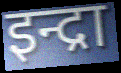
इन्द्रा